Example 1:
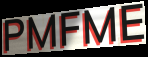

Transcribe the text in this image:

PMFME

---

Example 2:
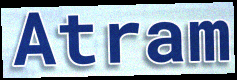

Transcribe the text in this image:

Atram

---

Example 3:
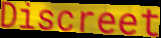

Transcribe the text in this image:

Discreet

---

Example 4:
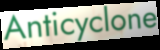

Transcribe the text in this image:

Anticyclone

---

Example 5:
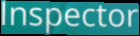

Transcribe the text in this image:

Inspector